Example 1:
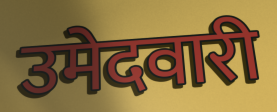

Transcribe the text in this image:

उमेदवारी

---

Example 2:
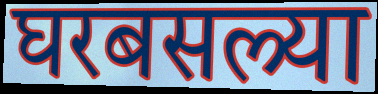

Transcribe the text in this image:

घरबसल्या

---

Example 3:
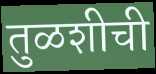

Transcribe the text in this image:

तुळशीची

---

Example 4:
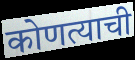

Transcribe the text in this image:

कोणत्याची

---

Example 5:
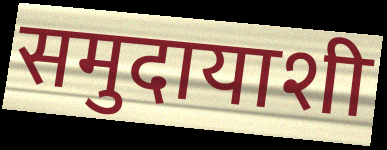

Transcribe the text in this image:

समुदायाशी